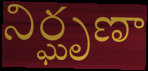
నిర్ఘృణా